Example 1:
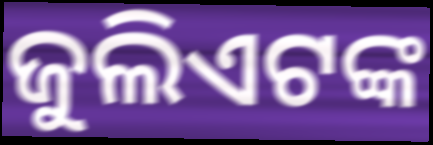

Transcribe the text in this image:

ଜୁଲିଏଟଙ୍କ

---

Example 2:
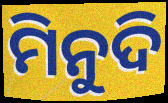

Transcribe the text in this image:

ମିନୁଦି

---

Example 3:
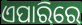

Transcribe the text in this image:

ଏପାରିରେ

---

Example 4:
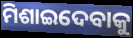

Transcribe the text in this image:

ମିଶାଇଦେବାକୁ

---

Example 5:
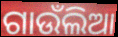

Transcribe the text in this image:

ଗାଉଁଲିଆ